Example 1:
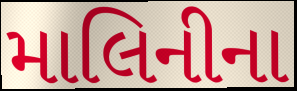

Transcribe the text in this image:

માલિનીના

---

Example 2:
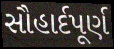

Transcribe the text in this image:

સૌહાર્દપૂર્ણ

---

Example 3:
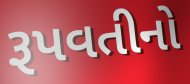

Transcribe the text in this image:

રૂપવતીનો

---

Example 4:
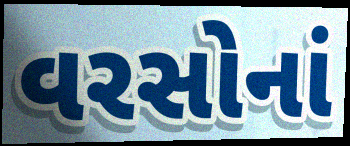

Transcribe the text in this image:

વરસોનાં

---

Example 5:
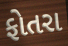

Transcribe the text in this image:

ફોતરા